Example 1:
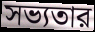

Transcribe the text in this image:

সভ্যতার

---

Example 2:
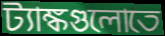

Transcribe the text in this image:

ট্যাঙ্কগুলোতে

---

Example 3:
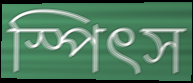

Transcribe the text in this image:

স্পিৎস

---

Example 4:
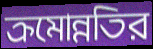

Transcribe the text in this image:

ক্রমোন্নতির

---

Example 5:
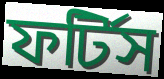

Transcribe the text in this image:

ফর্টিস